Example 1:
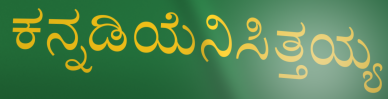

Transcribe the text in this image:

ಕನ್ನಡಿಯೆನಿಸಿತ್ತಯ್ಯ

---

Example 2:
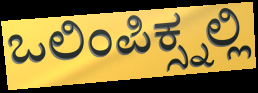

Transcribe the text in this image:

ಒಲಿಂಪಿಕ್ಸ್ನಲ್ಲಿ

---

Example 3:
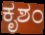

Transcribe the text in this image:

ಕೃಶಂ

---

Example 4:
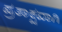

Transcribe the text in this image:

ಪ್ರತಾಕ್ಷವಾಗಿ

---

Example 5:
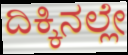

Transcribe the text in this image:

ದಿಕ್ಕಿನಲ್ಲೇ